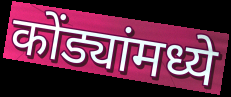
कोंड्यांमध्ये